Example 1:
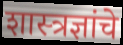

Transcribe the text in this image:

शास्त्रज्ञांचे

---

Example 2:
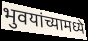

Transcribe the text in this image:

भुवयांच्यामध्ये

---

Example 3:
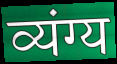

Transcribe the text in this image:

व्यंग्य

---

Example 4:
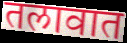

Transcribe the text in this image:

तलावात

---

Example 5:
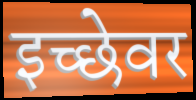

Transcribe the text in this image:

इच्छेवर